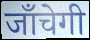
जाँचेगी